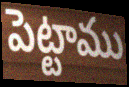
పెట్టాము